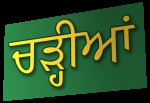
ਚੜ੍ਹੀਆਂ